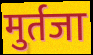
मुर्तजा